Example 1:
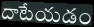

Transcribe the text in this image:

దాటేయడం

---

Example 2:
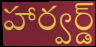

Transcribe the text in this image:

హార్వర్డ్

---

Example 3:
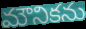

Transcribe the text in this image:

మౌనికను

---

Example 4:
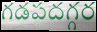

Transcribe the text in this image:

గడపదగ్గర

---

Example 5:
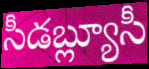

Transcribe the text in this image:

సీడబ్ల్యూసీ